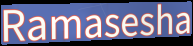
Ramasesha